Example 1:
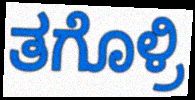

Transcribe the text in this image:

ತಗೊಳ್ರಿ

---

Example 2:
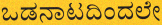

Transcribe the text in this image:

ಒಡನಾಟದಿಂದಲೇ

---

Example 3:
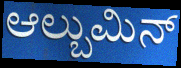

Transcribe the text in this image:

ಆಲ್ಬುಮಿನ್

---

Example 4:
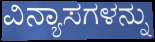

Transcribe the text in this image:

ವಿನ್ಯಾಸಗಳನ್ನು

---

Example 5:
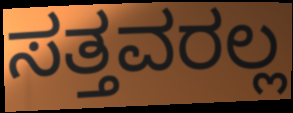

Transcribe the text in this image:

ಸತ್ತವರಲ್ಲ